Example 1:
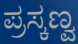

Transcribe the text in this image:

ಪ್ರಸ್ಕಣ್ವ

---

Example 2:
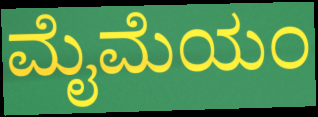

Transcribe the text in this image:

ಮೈಮೆಯಂ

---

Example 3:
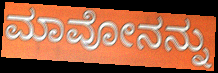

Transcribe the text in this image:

ಮಾವೋನನ್ನು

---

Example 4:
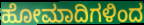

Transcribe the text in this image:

ಹೋಮಾದಿಗಳಿಂದ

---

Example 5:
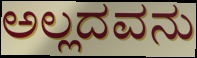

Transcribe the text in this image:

ಅಲ್ಲದವನು